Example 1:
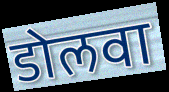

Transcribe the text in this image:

डोलवा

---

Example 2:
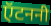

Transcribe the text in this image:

ऍटननी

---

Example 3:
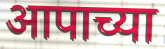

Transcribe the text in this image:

आपाच्या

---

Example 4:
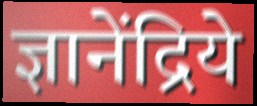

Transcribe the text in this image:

ज्ञानेंद्रिये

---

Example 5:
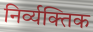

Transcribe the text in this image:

निर्व्यक्तिक